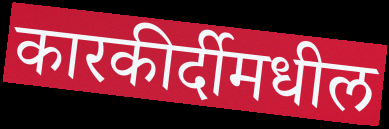
कारकीर्दीमधील